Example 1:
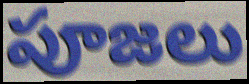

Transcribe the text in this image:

పూజలు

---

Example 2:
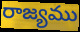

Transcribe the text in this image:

రాజ్యము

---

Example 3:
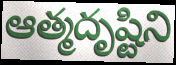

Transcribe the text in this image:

ఆత్మదృష్టిని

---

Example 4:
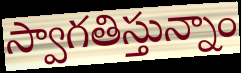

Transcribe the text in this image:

స్వాగతిస్తున్నాం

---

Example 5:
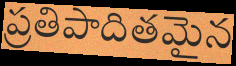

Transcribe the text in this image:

ప్రతిపాదితమైన